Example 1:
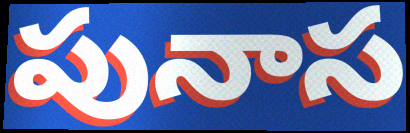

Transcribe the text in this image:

పునాస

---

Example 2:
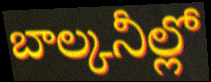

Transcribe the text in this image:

బాల్కనీల్లో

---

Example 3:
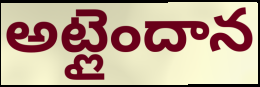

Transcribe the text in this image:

అట్లైందాన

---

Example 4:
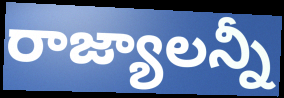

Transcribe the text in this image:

రాజ్యాలన్నీ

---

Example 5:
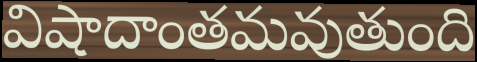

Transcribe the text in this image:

విషాదాంతమవుతుంది